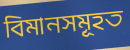
বিমানসমূহত